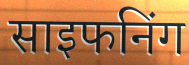
साइफनिंग